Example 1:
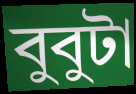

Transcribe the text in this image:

বুবুটা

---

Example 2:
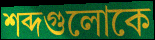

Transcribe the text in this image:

শব্দগুলোকে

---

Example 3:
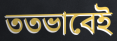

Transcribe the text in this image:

ততভাবেই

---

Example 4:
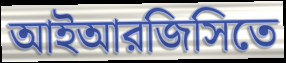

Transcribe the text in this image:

আইআরজিসিতে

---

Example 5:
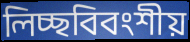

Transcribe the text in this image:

লিচ্ছবিবংশীয়